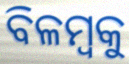
ବିଳମ୍ୱକୁ